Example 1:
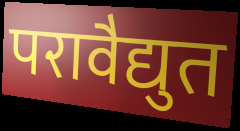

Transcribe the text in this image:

परावैद्युत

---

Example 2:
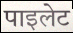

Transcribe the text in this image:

पाइलेट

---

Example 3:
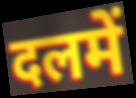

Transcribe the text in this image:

दलमें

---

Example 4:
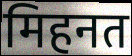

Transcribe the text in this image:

मिहनत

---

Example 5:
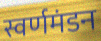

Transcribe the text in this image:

स्वर्णमंडन